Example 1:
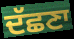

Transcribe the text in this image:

ਦੱਛਣਾ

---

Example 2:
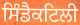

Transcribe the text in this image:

ਸਿੰਡੈਕਟਿਲੀ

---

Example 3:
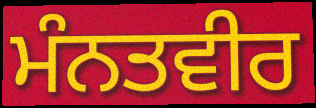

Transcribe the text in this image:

ਮੰਨਤਵੀਰ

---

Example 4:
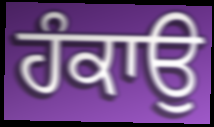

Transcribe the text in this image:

ਹੰਕਾਉ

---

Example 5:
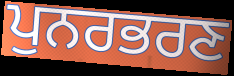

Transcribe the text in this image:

ਪੁਨਰਭਰਣ